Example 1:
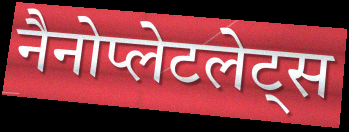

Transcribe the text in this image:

नैनोप्लेटलेट्स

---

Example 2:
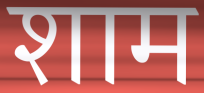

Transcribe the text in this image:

शाम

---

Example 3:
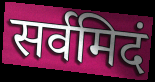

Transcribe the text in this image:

सर्वमिदं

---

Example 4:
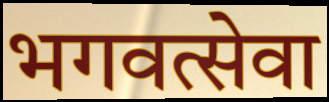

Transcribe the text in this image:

भगवत्सेवा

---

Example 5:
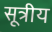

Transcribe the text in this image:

सूत्रीय